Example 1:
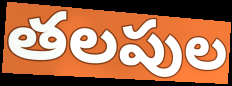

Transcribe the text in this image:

తలపుల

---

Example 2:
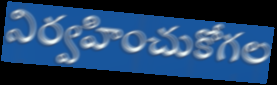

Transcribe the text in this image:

నిర్వహించుకోగల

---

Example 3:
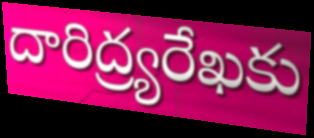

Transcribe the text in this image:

దారిద్ర్యరేఖకు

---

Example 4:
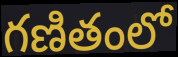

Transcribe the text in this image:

గణితంలో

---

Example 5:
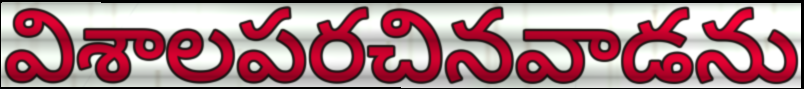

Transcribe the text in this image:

విశాలపరచినవాడను